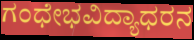
ಗಂಧೇಭವಿದ್ಯಾಧರನ